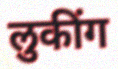
लुकींग